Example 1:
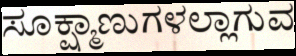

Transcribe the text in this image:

ಸೂಕ್ಷ್ಮಾಣುಗಳಲ್ಲಾಗುವ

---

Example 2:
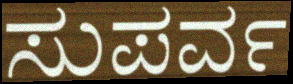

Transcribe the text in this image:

ಸುಪರ್ವ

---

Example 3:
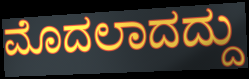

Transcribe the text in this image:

ಮೊದಲಾದದ್ದು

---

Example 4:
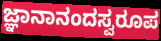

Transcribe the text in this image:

ಜ್ಞಾನಾನಂದಸ್ವರೂಪ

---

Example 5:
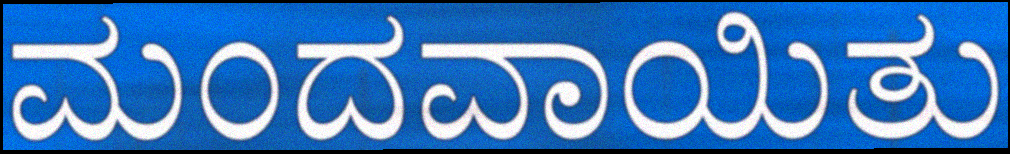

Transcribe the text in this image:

ಮಂದವಾಯಿತು